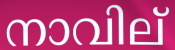
നാവില്